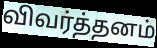
விவர்த்தனம்